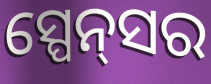
ସ୍ପେନ୍‌ସର